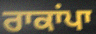
ਰਾਕਾਂਪਾ